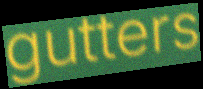
gutters